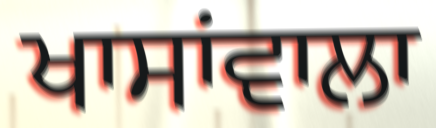
ਖਾਸਾਂਵਾਲਾ